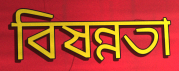
বিষন্নতা